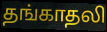
தங்காதலி